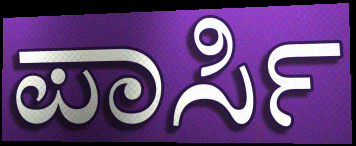
ಪಾರ್ಸಿ